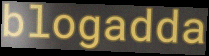
blogadda